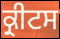
ਕ੍ਰੀਟਸ